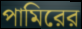
পামিরের